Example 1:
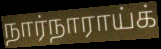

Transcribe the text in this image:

நார்நாராய்க்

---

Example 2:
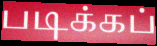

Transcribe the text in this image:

படிக்கப்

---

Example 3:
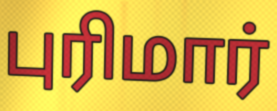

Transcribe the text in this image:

புரிமார்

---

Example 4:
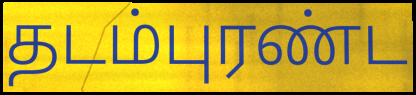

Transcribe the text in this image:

தடம்புரண்ட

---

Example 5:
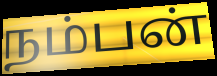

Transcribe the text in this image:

நம்பன்